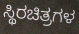
ಸ್ಥಿರಚಿತ್ರಗಳ